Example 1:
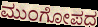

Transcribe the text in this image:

ಮುಂಗೋಪದ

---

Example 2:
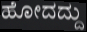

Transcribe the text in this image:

ಹೋದದ್ದು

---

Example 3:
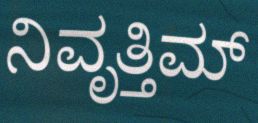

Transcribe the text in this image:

ನಿವೃತ್ತಿಮ್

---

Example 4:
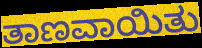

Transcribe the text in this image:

ತಾಣವಾಯಿತು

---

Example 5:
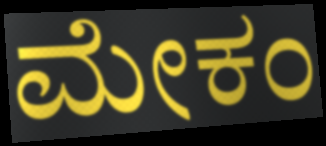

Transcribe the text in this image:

ಮೇಕಂ